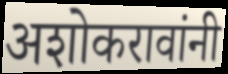
अशोकरावांनी